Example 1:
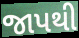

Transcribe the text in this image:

જાપથી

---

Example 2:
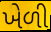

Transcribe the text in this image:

ખેળી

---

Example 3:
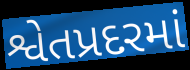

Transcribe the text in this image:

શ્વેતપ્રદરમાં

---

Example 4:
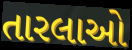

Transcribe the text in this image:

તારલાઓ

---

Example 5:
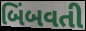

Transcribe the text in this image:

બિંબવતી